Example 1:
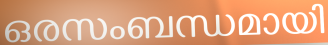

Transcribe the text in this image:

ഒരസംബന്ധമായി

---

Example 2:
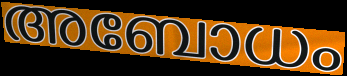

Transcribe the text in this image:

അബോധം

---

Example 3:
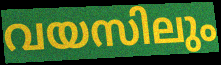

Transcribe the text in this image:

വയസിലും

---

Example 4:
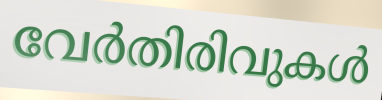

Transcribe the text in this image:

വേർതിരിവുകൾ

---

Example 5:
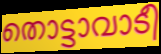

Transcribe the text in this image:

തൊട്ടാവാടീ